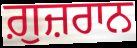
ਗ਼ੁਜ਼ਰਾਨ